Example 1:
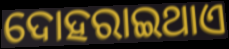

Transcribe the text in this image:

ଦୋହରାଇଥାଏ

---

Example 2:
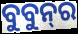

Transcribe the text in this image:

ବୁବୁନ୍‌ର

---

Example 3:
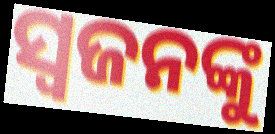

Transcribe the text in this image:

ସ୍ଵଜନଙ୍କୁ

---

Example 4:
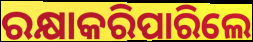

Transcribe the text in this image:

ରକ୍ଷାକରିପାରିଲେ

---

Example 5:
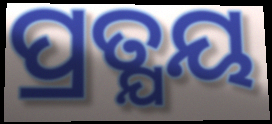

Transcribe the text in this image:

ପ୍ରତ୍ଯୟ